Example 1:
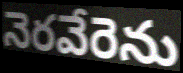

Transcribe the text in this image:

నెరవేరెను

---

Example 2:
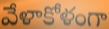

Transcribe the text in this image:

వేళాకోళంగా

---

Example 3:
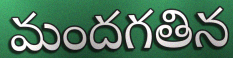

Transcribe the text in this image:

మందగతిన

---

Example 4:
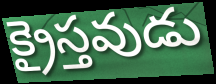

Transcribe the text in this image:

క్రైస్తవుడు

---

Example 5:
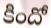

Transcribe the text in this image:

కిందో